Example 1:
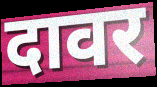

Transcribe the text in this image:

दावर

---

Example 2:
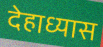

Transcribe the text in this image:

देहाध्यास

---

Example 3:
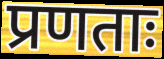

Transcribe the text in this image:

प्रणताः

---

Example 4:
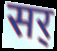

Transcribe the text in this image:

सर्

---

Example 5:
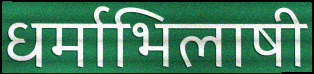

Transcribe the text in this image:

धर्माभिलाषी